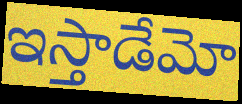
ఇస్తాడేమో